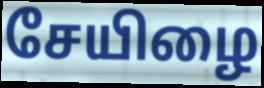
சேயிழை